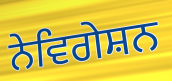
ਨੇਵਿਗੇਸ਼ਨ